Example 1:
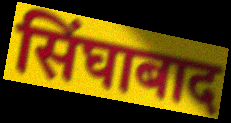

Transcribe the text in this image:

सिंघाबाद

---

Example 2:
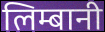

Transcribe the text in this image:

लिम्बानी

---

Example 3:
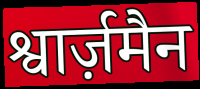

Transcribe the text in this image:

श्वार्ज़मैन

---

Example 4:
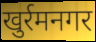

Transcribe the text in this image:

खुर्रमनगर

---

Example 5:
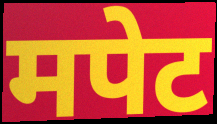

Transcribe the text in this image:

मपेट